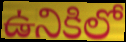
ఉనికిలో